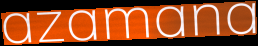
azamana